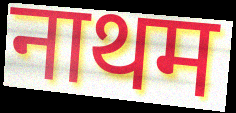
नाथम